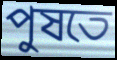
পুষতে